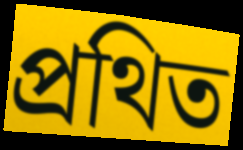
প্রথিত